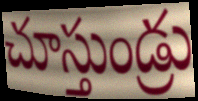
చూస్తుండ్రు